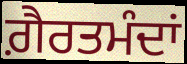
ਗ਼ੈਰਤਮੰਦਾਂ